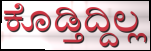
ಕೊಡ್ತಿದ್ದಿಲ್ಲ